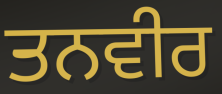
ਤਨਵੀਰ